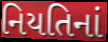
નિયતિનાં